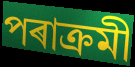
পৰাক্ৰমী